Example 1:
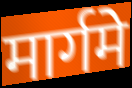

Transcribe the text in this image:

मार्गमे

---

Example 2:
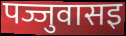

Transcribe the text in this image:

पज्जुवासइ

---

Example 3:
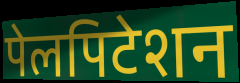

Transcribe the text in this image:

पेलपिटेशन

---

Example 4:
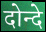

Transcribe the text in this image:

दोन्दे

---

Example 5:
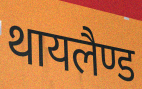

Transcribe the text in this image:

थायलैण्ड